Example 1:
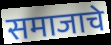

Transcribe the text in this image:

समाजाचे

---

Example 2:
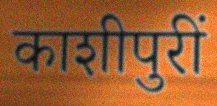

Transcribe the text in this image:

काशीपुरीं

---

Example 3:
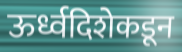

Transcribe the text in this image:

ऊर्ध्वदिशेकडून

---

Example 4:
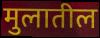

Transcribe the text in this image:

मुलातील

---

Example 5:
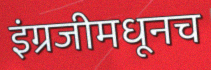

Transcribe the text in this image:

इंग्रजीमधूनच